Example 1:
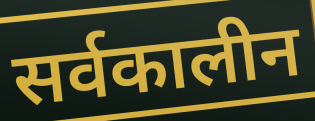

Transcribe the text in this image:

सर्वकालीन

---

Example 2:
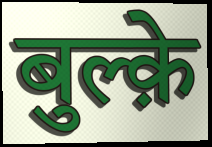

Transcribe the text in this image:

बुल्क़े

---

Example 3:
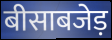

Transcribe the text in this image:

बीसाबजेड़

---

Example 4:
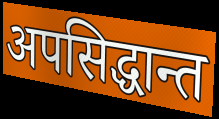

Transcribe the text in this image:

अपसिद्धान्त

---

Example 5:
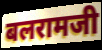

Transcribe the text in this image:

बलरामजी